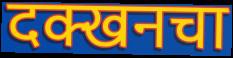
दक्खनचा